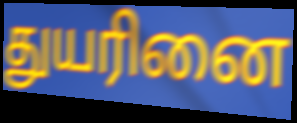
துயரினை